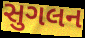
સુગલન